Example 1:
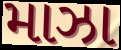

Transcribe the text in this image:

માઝા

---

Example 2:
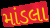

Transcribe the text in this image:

માંડલા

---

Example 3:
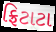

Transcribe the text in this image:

ફ્રિટાટા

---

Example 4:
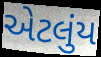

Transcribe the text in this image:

એટલુંય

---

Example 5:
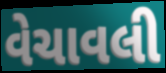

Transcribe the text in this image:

વેચાવલી